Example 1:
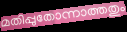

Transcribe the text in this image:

മതിപ്പുതോന്നാത്തതും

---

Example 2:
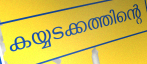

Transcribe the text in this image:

കയ്യടക്കത്തിന്റെ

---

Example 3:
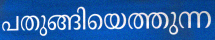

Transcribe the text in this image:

പതുങ്ങിയെത്തുന്ന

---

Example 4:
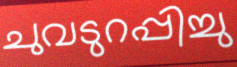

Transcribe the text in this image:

ചുവടുറപ്പിച്ചു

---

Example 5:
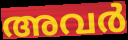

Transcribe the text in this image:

അവർ